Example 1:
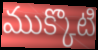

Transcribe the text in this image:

ముక్కొటి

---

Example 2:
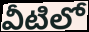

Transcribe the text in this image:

వీటిలో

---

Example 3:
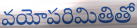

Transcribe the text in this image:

వయోపరిమితితో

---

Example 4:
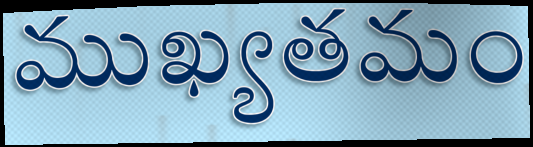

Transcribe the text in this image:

ముఖ్యతమం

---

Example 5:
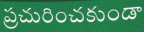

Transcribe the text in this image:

ప్రచురించకుండా